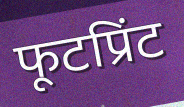
फूटप्रिंट